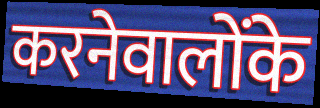
करनेवालोंके